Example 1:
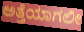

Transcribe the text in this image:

ಅತ್ತೆಯಾಗಲೀ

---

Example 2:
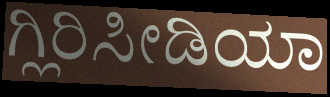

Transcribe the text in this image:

ಗ್ಲಿರಿಸೀಡಿಯಾ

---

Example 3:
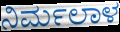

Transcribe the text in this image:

ನಿರ್ಮಲಾಳ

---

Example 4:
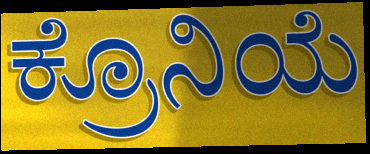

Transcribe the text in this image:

ಕ್ರೊನಿಯೆ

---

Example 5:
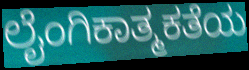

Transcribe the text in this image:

ಲೈಂಗಿಕಾತ್ಮಕತೆಯ